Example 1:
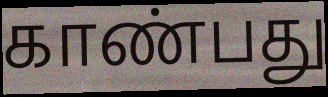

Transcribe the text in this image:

காண்பது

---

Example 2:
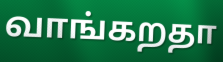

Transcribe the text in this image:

வாங்கறதா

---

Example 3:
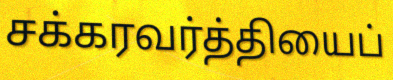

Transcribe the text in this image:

சக்கரவர்த்தியைப்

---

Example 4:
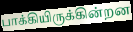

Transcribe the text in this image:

பாக்கியிருக்கின்றன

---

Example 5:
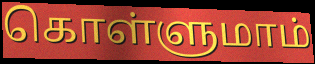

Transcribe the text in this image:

கொள்ளுமாம்